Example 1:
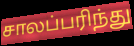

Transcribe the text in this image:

சாலப்பரிந்து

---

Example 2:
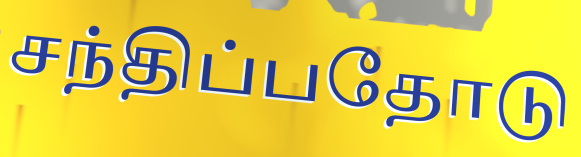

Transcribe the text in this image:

சந்திப்பதோடு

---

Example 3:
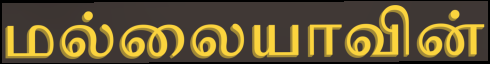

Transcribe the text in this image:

மல்லையாவின்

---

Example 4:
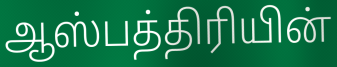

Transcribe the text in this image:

ஆஸ்பத்திரியின்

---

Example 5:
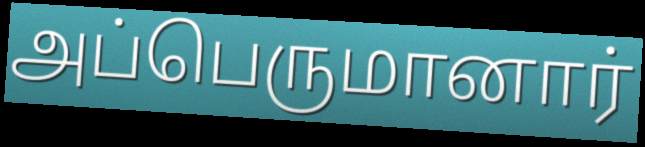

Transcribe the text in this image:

அப்பெருமானார்